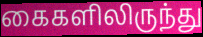
கைகளிலிருந்து